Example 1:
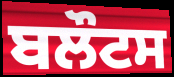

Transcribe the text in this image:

ਬਲੌਟਸ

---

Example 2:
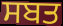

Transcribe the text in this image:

ਸਬਤ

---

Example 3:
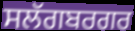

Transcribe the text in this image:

ਸਲੱਗਬਰਗਰ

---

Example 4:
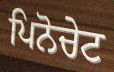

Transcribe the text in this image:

ਪਿਨੋਚੇਟ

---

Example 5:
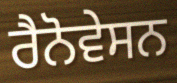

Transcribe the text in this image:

ਰੈਨੋਵੇਸਨ